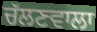
ਚੱਲਣਵਾਲਾ